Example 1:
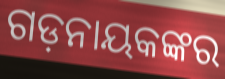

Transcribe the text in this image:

ଗଡ଼ନାୟକଙ୍କର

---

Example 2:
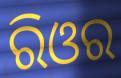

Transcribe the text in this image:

ରିଓର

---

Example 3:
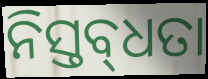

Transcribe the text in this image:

ନିସ୍ତବ୍‌ଧତା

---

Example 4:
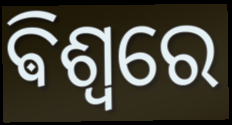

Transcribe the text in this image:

ଵିଶ୍ଵରେ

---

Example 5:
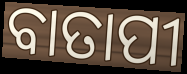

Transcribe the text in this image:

ବାତାପୀ